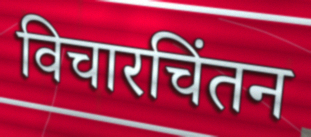
विचारचिंतन